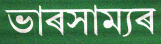
ভাৰসাম্যৰ